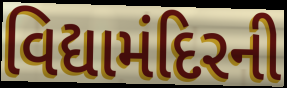
વિદ્યામંદિરની